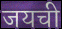
जयची